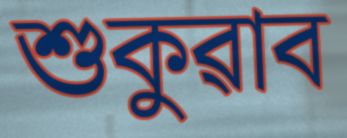
শুকুৱাব